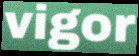
vigor